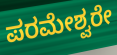
ಪರಮೇಶ್ವರೇ